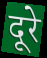
दूरे